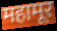
महामूर